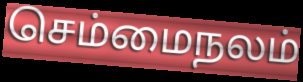
செம்மைநலம்